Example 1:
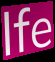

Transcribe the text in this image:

Ife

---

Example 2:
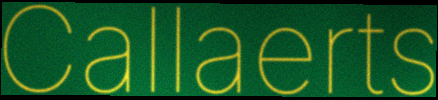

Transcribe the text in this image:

Callaerts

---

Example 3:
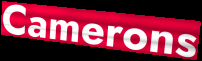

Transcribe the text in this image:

Camerons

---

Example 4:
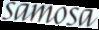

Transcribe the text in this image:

samosa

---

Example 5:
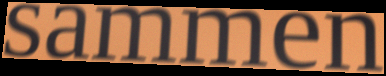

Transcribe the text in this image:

sammen